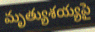
మృత్యుశయ్యపై